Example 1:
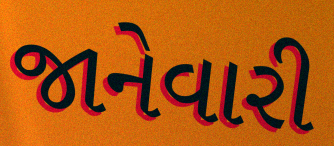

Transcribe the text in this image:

જાનેવારી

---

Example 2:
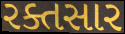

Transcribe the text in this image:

રક્તસાર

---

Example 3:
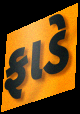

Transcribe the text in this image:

ફાડે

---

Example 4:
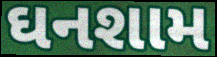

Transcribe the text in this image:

ઘનશામ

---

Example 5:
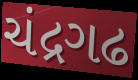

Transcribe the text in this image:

ચંદ્રગઢ